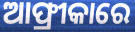
ଆଫ୍ରୀକାରେ